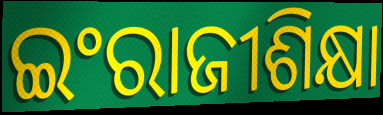
ଇଂରାଜୀଶିକ୍ଷା